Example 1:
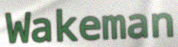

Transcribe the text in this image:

Wakeman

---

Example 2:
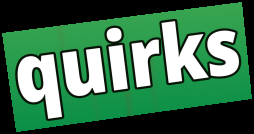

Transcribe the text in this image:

quirks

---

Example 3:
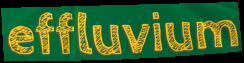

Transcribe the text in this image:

effluvium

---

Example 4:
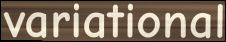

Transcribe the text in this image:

variational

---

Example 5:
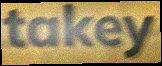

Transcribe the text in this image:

takey